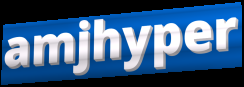
amjhyper